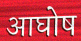
आघोष